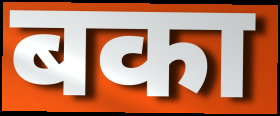
बका